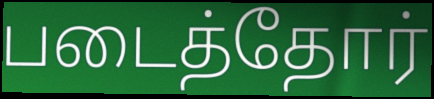
படைத்தோர்